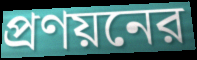
প্রণয়নের